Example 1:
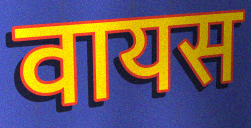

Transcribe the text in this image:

वायस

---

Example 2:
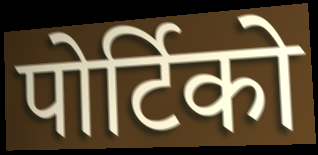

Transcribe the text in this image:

पोर्टिको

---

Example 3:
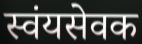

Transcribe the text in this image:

स्वंयसेवक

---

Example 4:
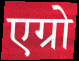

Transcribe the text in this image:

एग्रो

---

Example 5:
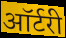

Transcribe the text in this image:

ऑर्टरी